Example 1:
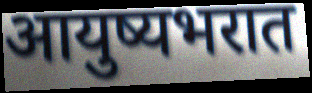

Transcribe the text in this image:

आयुष्यभरात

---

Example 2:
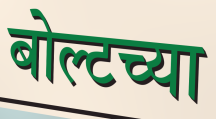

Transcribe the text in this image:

बोल्टच्या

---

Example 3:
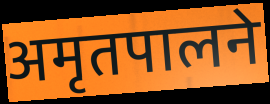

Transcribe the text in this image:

अमृतपालने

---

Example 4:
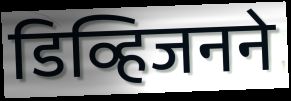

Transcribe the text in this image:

डिव्हिजनने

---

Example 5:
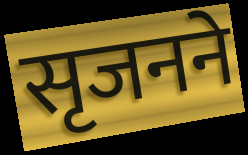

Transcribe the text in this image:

सृजनने